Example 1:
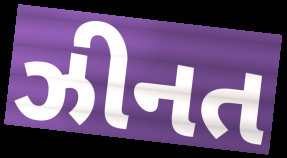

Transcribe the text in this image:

ઝીનત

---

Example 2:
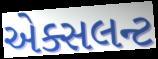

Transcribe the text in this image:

એક્સલન્ટ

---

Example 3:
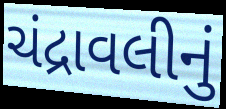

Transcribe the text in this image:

ચંદ્રાવલીનું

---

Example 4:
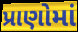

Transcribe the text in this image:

પ્રાણોમાં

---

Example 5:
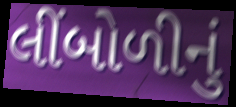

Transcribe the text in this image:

લીંબોળીનું